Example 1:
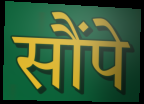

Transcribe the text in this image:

सौंपे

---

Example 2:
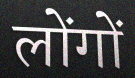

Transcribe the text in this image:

लोंगों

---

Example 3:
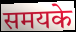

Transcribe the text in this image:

समयके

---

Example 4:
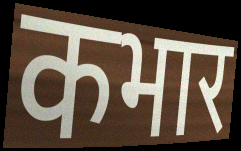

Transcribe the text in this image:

कभार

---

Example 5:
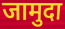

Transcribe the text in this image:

जामुदा